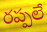
రప్పలే